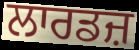
ਲਾਰਡਜ਼